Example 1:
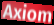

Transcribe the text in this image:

Axiom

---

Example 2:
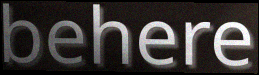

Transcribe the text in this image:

behere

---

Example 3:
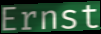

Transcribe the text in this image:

Ernst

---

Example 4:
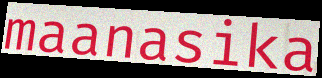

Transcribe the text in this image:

maanasika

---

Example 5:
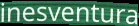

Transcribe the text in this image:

inesventura